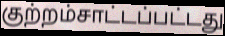
குற்றம்சாட்டப்பட்டது